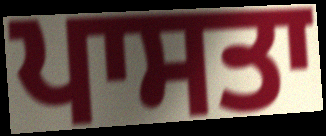
ਪਾਸਤਾ